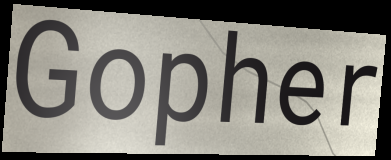
Gopher